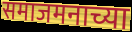
समाजमनाच्या